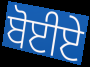
ਬੋਈਏ